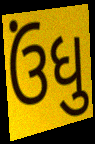
ઉંધુ